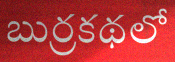
బుర్రకథలో